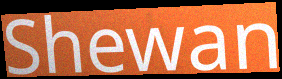
Shewan